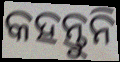
କହନ୍ତୁନି